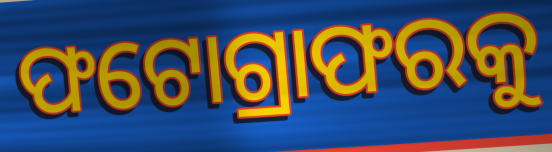
ଫଟୋଗ୍ରାଫରକୁ